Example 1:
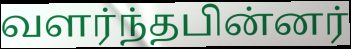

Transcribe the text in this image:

வளர்ந்தபின்னர்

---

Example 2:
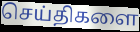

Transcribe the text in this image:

செய்திகளை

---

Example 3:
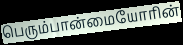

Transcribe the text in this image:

பெரும்பான்மையோரின்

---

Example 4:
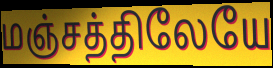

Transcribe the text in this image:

மஞ்சத்திலேயே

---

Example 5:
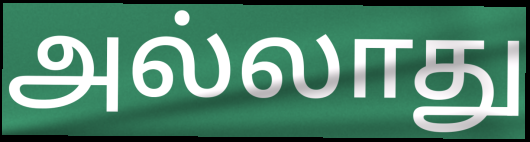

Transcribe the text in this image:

அல்லாது